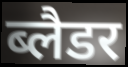
ब्लैडर